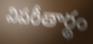
విపరీతార్థం